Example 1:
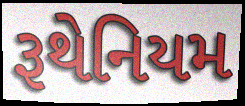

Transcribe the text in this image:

રૂથેનિયમ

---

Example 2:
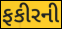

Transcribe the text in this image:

ફકીરની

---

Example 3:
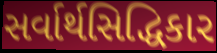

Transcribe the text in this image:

સર્વાર્થસિદ્ધિકાર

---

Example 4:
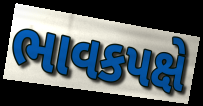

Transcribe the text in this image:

ભાવકપક્ષે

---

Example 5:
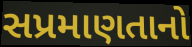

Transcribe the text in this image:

સપ્રમાણતાનો